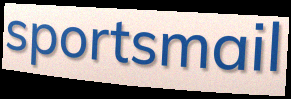
sportsmail